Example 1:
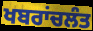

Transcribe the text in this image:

ਖਬਰਾਂਚਲੰਤ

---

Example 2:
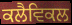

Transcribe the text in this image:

ਕਲੈਵਿਕਲ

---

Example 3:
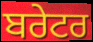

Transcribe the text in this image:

ਬਰੇਟਰ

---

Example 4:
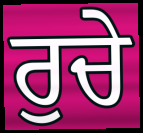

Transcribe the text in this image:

ਰੁਚੇ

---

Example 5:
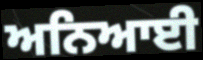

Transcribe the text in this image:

ਅਨਿਆਈ